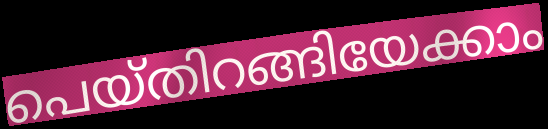
പെയ്തിറങ്ങിയേക്കാം